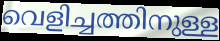
വെളിച്ചത്തിനുള്ള